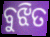
ବୁଝିତ